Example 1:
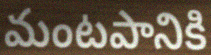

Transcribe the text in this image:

మంటపానికి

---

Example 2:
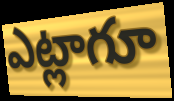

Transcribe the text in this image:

ఎట్లాగూ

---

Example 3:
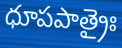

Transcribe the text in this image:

ధూపపాత్రైః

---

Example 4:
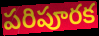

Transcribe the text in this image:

పరిపూరక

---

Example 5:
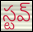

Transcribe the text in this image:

స్టవ్